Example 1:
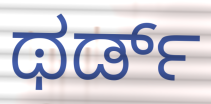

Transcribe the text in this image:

ಥರ್ಡ್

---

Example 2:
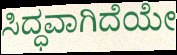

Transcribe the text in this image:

ಸಿದ್ಧವಾಗಿದೆಯೇ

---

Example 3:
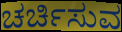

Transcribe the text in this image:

ಚರ್ಚಿಸುವ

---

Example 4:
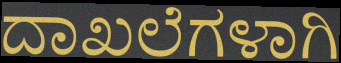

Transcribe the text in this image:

ದಾಖಲೆಗಳಾಗಿ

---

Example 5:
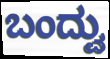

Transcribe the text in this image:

ಬಂದ್ವು